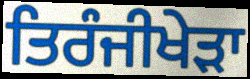
ਤਿਰੰਜੀਖੇੜਾ